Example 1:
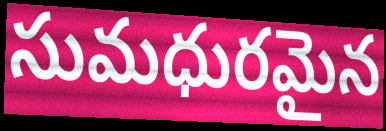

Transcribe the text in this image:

సుమధురమైన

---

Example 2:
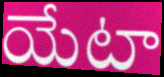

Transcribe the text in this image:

యేటా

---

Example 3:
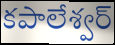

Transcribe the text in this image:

కపాలేశ్వర్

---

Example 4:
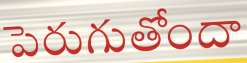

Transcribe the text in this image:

పెరుగుతోందా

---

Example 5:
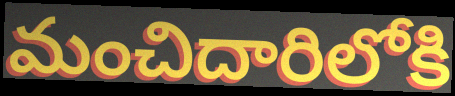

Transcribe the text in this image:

మంచిదారిలోకి